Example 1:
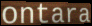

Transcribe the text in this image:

ontara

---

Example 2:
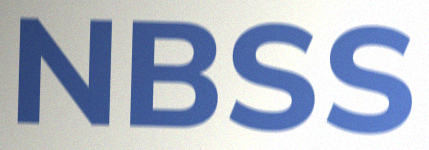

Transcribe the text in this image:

NBSS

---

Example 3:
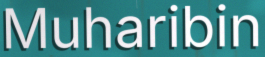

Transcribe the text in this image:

Muharibin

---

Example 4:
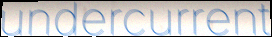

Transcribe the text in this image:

undercurrent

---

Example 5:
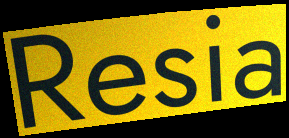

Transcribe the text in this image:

Resia